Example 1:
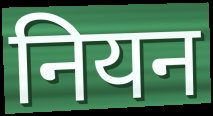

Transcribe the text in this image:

नियन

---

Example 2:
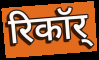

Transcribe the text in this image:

रिकॉर्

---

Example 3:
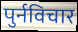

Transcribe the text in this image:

पुर्नविचार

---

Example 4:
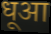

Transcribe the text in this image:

धूआ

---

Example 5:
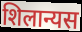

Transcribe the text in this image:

शिलान्यस